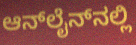
ಆನ್‌ಲೈನ್‌ನಲ್ಲಿ